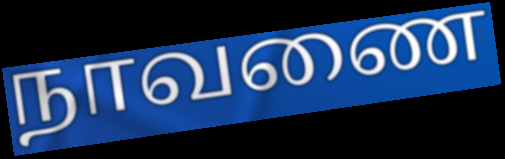
நாவணை